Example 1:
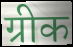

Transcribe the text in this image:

ग्रीक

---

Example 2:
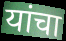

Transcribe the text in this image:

यांचा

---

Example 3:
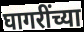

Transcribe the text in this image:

घागरींच्या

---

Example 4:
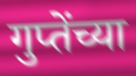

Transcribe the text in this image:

गुप्तेंच्या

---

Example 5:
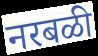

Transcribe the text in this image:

नरबळी